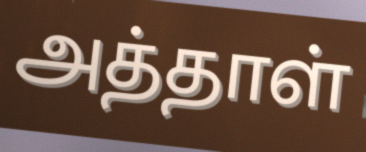
அத்தாள்